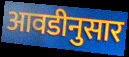
आवडीनुसार